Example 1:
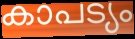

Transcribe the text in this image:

കാപട്യം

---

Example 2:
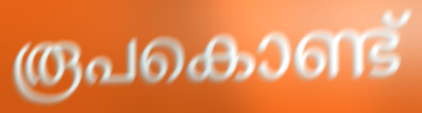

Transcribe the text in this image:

രൂപകൊണ്ട്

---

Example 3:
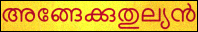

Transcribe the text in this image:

അങ്ങേക്കുതുല്യൻ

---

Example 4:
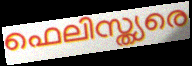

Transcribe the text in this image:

ഫെലിസ്ത്യരെ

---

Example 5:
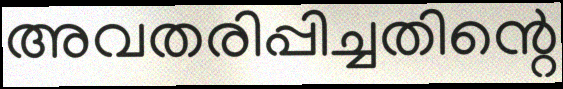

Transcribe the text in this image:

അവതരിപ്പിച്ചതിന്റെ